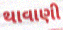
થાવાણી